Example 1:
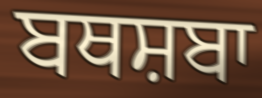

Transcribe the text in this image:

ਬਥਸ਼ਬਾ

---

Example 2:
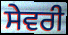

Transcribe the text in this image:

ਸੇਵਰੀ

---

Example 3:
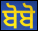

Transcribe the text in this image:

ਬੋਬੋ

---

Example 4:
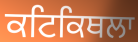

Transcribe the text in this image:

ਕਟਿਕਿਥਲਾ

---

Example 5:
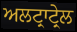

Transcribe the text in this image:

ਅਲਟ੍ਰਾਟ੍ਰੇਲ